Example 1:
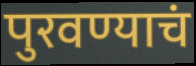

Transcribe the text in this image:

पुरवण्याचं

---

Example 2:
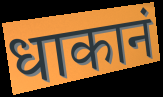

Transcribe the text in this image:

धाकानं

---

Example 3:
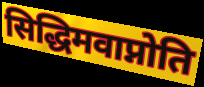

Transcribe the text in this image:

सिद्धिमवाप्नोति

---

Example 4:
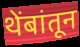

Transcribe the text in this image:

थेंबांतून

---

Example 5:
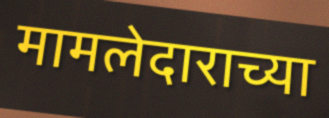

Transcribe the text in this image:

मामलेदाराच्या